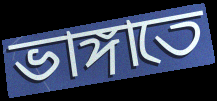
ভাঙ্গাতে